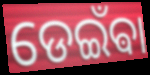
ଡେଇଁଵା